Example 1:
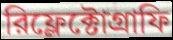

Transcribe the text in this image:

রিফ্লেক্টোগ্রাফি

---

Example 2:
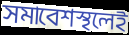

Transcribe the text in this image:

সমাবেশস্থলেই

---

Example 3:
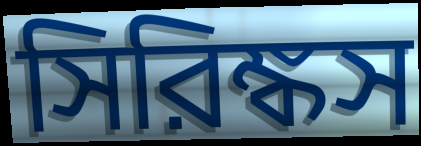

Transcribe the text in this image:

সিরিঙ্কস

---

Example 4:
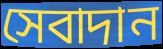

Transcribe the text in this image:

সেবাদান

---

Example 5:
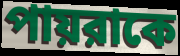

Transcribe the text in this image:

পায়রাকে